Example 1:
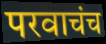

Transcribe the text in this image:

परवाचंच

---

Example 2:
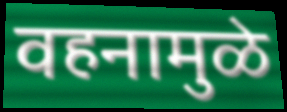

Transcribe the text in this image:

वहनामुळे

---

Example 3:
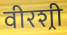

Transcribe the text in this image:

वीरश्री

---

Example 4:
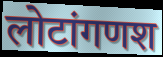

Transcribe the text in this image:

लोटांगणश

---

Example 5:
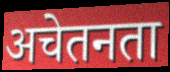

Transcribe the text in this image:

अचेतनता